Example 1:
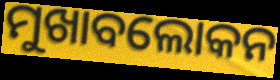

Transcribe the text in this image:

ମୁଖାବଲୋକନ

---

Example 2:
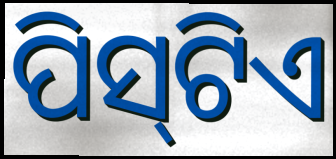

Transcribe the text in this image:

ପିସ୍‌ଟିଏ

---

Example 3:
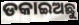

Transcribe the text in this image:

ଡକାଇଅଛୁ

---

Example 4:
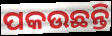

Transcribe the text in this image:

ପକଉଛନ୍ତି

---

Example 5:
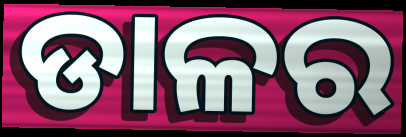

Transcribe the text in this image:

ଡାଳର